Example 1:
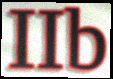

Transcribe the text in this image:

IIb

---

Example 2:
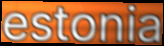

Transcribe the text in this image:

estonia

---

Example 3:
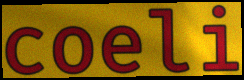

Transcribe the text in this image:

coeli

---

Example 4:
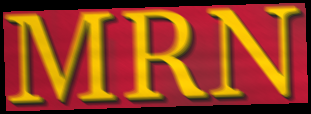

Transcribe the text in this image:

MRN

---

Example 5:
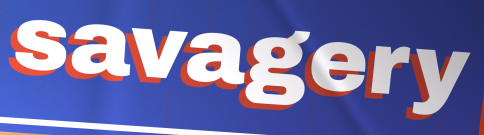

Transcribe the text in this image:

savagery